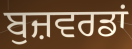
ਬੁਜ਼ਵਰਡਾਂ